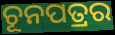
ଚୂନପତ୍ରର